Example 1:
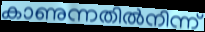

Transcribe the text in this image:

കാണുന്നതിൽനിന്ന്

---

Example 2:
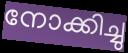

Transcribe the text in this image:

നോക്കിച്ചു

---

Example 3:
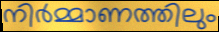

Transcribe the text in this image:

നിർമ്മാണത്തിലും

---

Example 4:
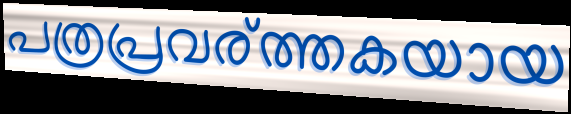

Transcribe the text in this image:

പത്രപ്രവര്ത്തകയായ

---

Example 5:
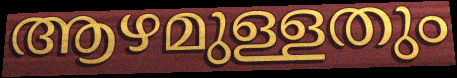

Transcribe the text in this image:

ആഴമുള്ളതും